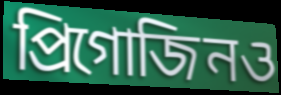
প্রিগোজিনও